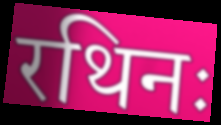
रथिनः